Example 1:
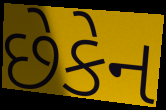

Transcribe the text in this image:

છેકેન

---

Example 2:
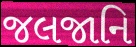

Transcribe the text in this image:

જલજાનિ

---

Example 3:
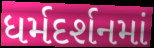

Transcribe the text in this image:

ધર્મદર્શનમાં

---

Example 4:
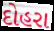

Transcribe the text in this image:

દોહરા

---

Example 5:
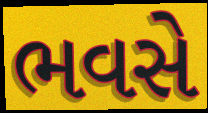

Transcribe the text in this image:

ભવસે